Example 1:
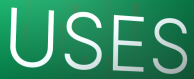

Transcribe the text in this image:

USES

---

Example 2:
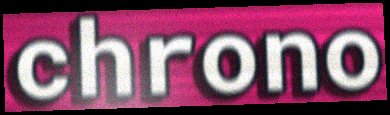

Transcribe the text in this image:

chrono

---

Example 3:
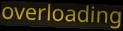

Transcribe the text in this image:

overloading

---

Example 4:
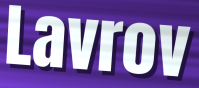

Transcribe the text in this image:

Lavrov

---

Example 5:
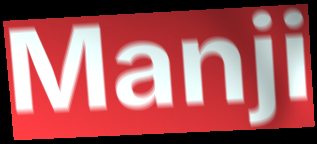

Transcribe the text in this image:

Manji